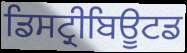
ਡਿਸਟ੍ਰੀਬਿਊਟਡ